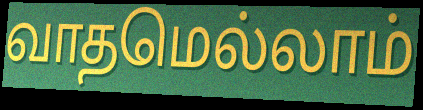
வாதமெல்லாம்